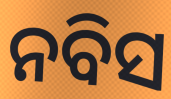
ନବିସ